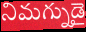
నిమగ్నుడై